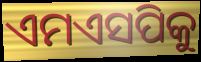
ଏମଏସପିକୁ